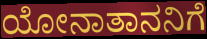
ಯೋನಾತಾನನಿಗೆ